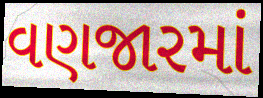
વણજારમાં